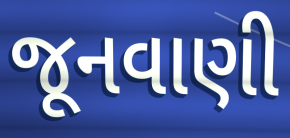
જૂનવાણી